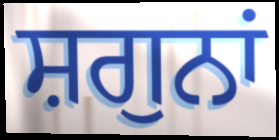
ਸ਼ਗੁਨਾਂ